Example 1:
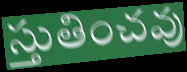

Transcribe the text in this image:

స్తుతించవు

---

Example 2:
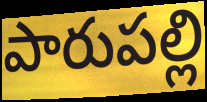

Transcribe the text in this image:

పారుపల్లి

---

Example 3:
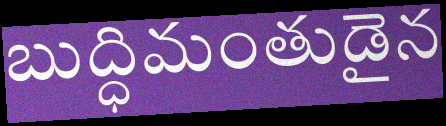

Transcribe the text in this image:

బుద్ధిమంతుడైన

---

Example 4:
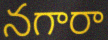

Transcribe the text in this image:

నగారా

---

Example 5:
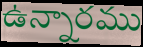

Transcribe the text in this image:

ఉన్నారము